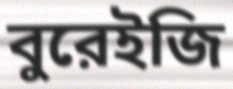
বুরেইজি